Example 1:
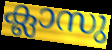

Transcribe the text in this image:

ക്ലാസു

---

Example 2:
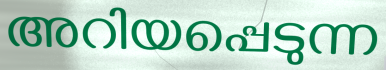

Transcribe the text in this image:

അറിയപ്പെടുന്ന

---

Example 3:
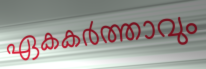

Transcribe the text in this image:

ഏകകർത്താവും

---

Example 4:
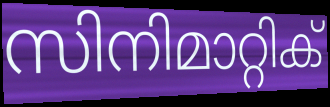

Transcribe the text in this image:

സിനിമാറ്റിക്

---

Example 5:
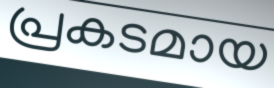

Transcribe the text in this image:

പ്രകടമായ